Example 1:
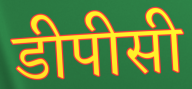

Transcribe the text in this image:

डीपीसी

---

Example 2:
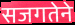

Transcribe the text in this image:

सजगतेने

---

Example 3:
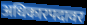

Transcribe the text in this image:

अधिकारपदावर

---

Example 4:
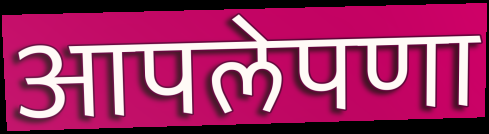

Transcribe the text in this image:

आपलेपणा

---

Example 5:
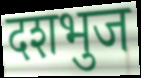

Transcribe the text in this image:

दशभुज